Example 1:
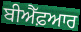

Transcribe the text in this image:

ਬੀਐੱਫ਼ਆਰ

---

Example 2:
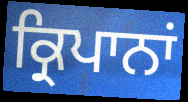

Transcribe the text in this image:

ਕ੍ਰਿਪਾਨਾਂ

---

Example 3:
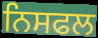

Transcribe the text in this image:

ਨਿਸਫਲ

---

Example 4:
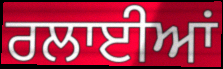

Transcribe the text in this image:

ਰਲਾਈਆਂ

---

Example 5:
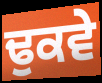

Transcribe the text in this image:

ਢੁਕਵੇ